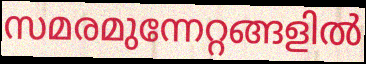
സമരമുന്നേറ്റങ്ങളിൽ